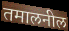
तमालनील